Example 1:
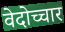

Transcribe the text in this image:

वेदोच्चार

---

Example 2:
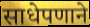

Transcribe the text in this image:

साधेपणाने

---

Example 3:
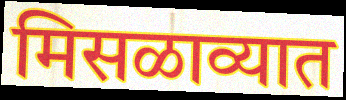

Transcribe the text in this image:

मिसळाव्यात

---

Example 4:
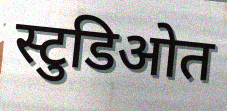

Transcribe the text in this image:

स्टुडिओत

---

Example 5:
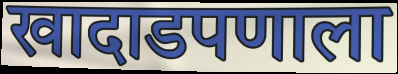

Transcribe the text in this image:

खादाडपणाला